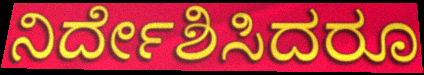
ನಿರ್ದೇಶಿಸಿದರೂ